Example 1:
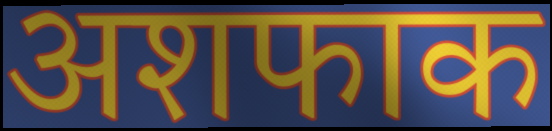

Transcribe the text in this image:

अशफाक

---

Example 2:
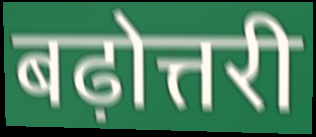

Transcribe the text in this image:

बढ़ोत्तरी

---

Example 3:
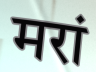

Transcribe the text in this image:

मरां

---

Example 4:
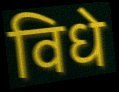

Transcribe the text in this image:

विधे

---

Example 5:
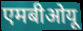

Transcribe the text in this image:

एमबीओयू